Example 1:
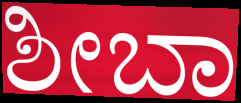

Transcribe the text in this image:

ಶೀಬಾ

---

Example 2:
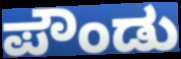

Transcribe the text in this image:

ಪೌಂಡು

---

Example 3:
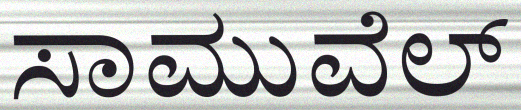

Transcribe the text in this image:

ಸಾಮುವೆಲ್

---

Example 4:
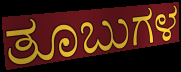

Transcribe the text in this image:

ತೂಬುಗಳ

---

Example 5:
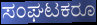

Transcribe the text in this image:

ಸಂಘಟಕರೂ